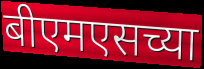
बीएमएसच्या